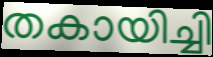
തകായിച്ചി